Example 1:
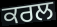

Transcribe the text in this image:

ਕਰਲ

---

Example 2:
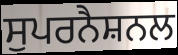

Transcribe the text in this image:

ਸੁਪਰਨੈਸ਼ਨਲ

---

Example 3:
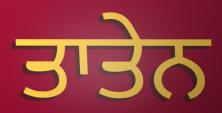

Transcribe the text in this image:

ਤਾਤੇਨ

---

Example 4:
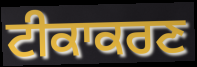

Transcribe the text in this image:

ਟੀਕਾਕਰਣ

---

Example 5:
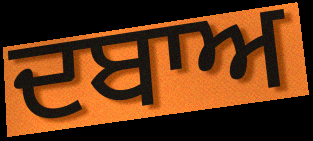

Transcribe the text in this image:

ਦਬਾਅ